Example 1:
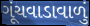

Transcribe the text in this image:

ગૂંચવાડાવાળું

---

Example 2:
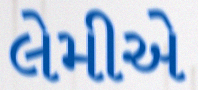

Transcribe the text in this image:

લેમીએ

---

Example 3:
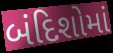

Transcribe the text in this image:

બંદિશોમાં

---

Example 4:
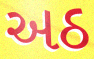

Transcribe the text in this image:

અઠ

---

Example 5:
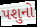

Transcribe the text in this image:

પશુનો